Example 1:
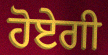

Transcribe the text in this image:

ਹੋਏਗੀ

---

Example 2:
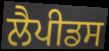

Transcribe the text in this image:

ਲੈਪੀਡਸ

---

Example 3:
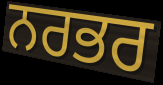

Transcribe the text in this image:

ਨਰਭਰ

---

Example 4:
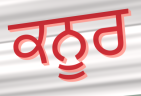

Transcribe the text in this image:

ਕਨੂਰ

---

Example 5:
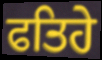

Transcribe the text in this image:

ਫਤਿਹੇ